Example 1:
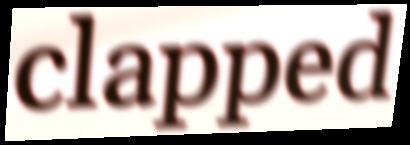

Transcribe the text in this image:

clapped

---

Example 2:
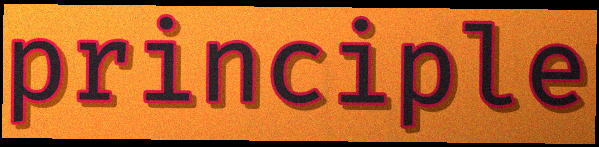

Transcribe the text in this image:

principle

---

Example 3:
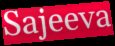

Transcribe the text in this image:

Sajeeva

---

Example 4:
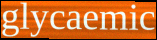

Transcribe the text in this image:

glycaemic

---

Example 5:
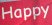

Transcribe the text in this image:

Happy